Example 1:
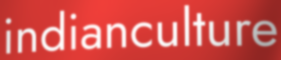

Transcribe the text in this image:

indianculture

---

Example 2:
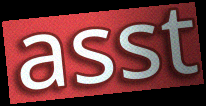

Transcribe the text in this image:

asst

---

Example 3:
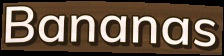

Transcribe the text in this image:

Bananas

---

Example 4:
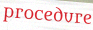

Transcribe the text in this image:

procedure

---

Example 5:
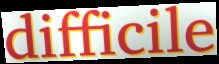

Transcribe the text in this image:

difficile